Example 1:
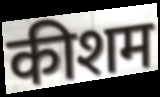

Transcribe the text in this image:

कीशम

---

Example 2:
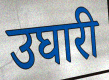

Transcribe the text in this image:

उघारी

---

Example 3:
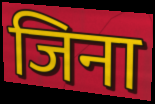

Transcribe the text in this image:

जिना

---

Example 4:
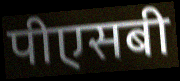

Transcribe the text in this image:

पीएसबी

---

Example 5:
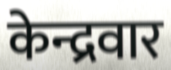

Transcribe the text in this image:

केन्‍द्रवार